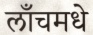
लाँचमधे